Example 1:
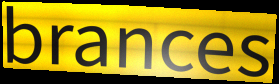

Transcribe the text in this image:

brances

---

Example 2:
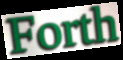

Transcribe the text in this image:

Forth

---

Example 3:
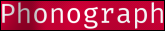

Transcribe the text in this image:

Phonograph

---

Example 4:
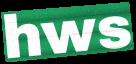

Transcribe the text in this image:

hws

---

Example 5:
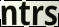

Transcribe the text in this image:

ntrs